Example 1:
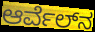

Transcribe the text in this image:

ಆರ್ವೆಲ್‍ನ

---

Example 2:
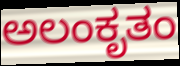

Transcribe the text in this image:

ಅಲಂಕೃತಂ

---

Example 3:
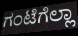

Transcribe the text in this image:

ಗಂಟೆಗೆಲ್ಲಾ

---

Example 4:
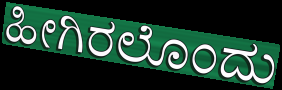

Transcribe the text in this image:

ಹೀಗಿರಲೊಂದು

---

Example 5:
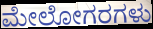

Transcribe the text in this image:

ಮೇಲೋಗರಗಳು